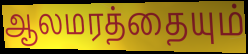
ஆலமரத்தையும்